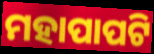
ମହାପାପଟି